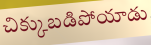
చిక్కుబడిపోయాడు